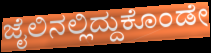
ಜೈಲಿನಲ್ಲಿದ್ದುಕೊಂಡೇ